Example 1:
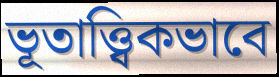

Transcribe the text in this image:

ভূতাত্ত্বিকভাবে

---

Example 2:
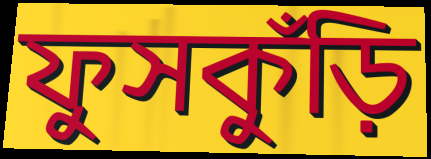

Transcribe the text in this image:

ফুসকুঁড়ি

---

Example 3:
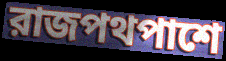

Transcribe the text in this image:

রাজপথপাশে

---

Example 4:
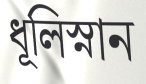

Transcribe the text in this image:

ধূলিস্নান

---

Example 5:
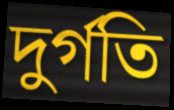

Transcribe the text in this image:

দুর্গতি